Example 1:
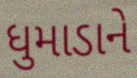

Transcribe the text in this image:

ધુમાડાને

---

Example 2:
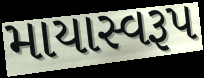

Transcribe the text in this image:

માયાસ્વરૂપ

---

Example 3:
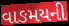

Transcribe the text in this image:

વાઙમયની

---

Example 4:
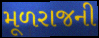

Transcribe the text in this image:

મૂળરાજની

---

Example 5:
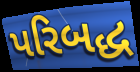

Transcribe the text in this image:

પરિબદ્ધ